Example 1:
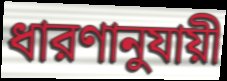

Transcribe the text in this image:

ধারণানুযায়ী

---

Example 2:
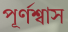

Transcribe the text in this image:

পূর্ণশ্বাস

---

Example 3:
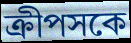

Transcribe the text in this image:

ক্রীপসকে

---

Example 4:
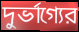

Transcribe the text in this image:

দুর্ভাগ্যের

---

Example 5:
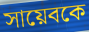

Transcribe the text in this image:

সায়েবকে